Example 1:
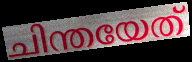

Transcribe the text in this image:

ചിന്തയേത്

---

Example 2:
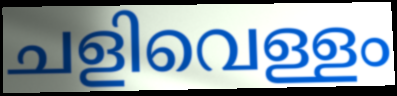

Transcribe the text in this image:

ചളിവെള്ളം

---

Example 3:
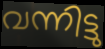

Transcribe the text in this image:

വന്നിട്ടു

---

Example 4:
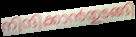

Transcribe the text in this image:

നിന്ദിക്കാൻതുടങ്ങി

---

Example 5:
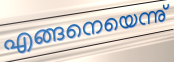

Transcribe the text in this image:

എങ്ങനെയെന്നു്